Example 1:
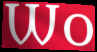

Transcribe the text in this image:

Wo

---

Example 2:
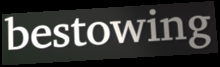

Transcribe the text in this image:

bestowing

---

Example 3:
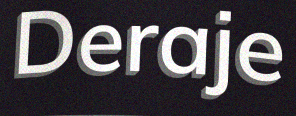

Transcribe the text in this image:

Deraje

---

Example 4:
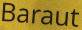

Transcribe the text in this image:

Baraut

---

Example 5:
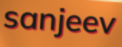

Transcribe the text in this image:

sanjeev